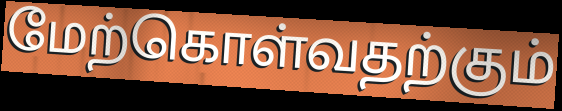
மேற்கொள்வதற்கும்